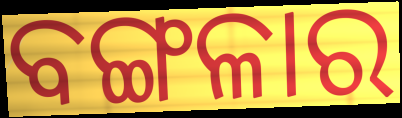
ବଙ୍ଗଳାର